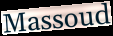
Massoud